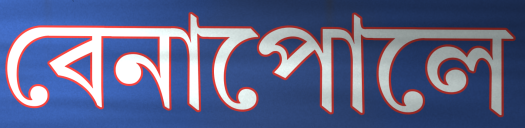
বেনাপোলে